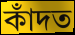
কাঁদত